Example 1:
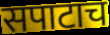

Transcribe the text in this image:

सपाटाच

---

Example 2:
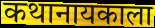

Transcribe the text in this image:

कथानायकाला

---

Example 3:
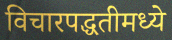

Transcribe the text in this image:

विचारपद्धतीमध्ये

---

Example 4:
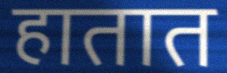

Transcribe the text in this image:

हातात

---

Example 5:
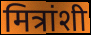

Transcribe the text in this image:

मित्रांशी